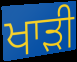
ਖਾਡ਼ੀ